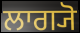
ਲਾਗ੍ਯੋ